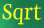
Sqrt